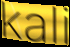
kali